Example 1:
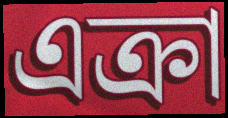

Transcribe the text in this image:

এক্রা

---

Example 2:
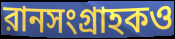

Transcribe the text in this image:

রানসংগ্রাহকও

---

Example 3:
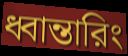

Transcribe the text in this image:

ধ্বান্তারিং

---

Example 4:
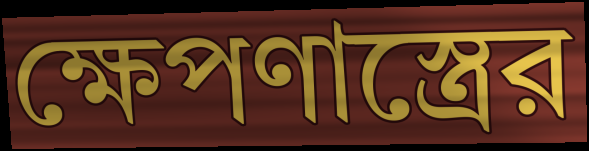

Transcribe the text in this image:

ক্ষেপণাস্ত্রের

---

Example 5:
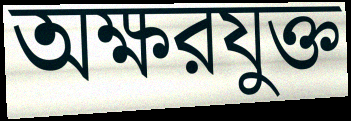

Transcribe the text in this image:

অক্ষরযুক্ত